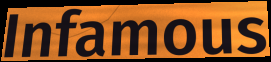
Infamous